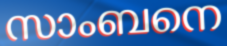
സാംബനെ